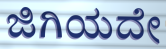
ಜಿಗಿಯದೇ